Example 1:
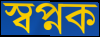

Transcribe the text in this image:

স্বপ্নক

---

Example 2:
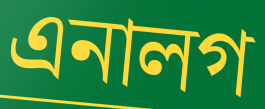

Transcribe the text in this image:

এনালগ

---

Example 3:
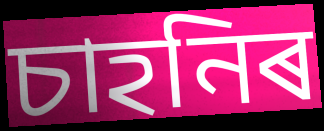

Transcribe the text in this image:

চাহনিৰ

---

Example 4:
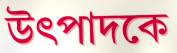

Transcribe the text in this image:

উৎপাদকে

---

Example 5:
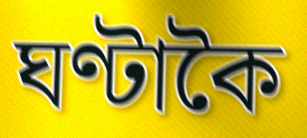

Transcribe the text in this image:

ঘণ্টাকৈ